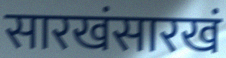
सारखंसारखं